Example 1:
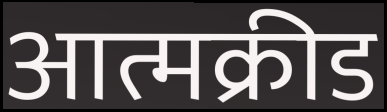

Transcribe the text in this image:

आत्मक्रीड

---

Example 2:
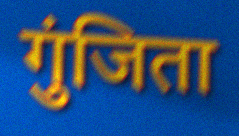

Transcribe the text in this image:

गुंजिता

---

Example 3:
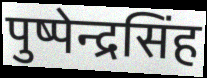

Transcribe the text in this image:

पुष्पेन्द्रसिंह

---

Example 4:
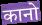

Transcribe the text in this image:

कानो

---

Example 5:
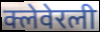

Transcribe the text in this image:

क्लेवेरली